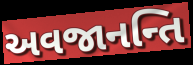
અવજાનન્તિ